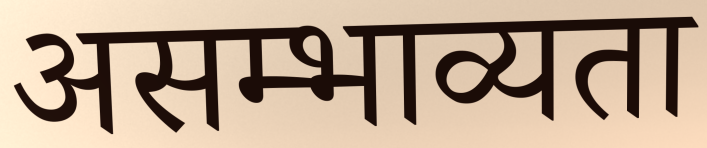
असम्भाव्यता